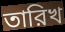
তারিখ